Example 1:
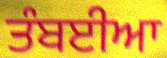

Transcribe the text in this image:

ਤੰਬਈਆ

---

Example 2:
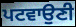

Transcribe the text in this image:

ਪਟਵਾਉਣੀ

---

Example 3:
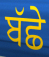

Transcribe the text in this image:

ਬੱਛੇ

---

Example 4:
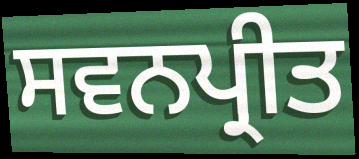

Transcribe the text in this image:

ਸਵਨਪ੍ਰੀਤ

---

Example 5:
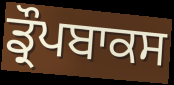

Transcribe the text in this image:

ਡ੍ਰੌਪਬਾਕਸ